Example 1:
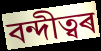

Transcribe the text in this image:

বন্দীত্বৰ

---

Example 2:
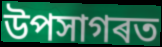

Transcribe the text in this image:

উপসাগৰত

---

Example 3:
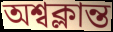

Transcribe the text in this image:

অশ্বক্লান্ত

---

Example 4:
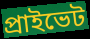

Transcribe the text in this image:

প্ৰাইভেট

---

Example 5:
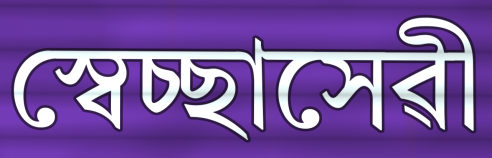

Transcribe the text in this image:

স্বেচ্ছাসেৱী